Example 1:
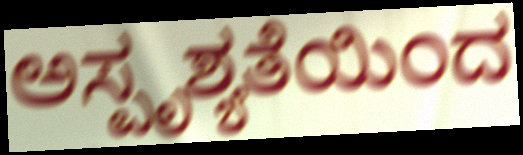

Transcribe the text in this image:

ಅಸ್ಪೃಶ್ಯತೆಯಿಂದ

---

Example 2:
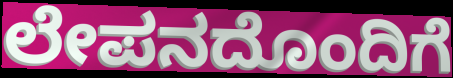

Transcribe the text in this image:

ಲೇಪನದೊಂದಿಗೆ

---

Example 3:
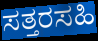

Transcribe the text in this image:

ಸತ್ತರಸಹಿ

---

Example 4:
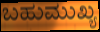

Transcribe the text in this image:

ಬಹುಮುಖ್ಯ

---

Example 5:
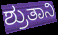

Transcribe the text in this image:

ಶ್ರುತಾನಿ